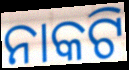
ନାକଟି